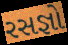
રસજ્ઞો